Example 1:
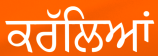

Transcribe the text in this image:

ਕਰੱਲਿਆਂ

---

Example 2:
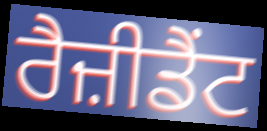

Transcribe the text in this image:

ਰੈਜ਼ੀਡੈਂਟ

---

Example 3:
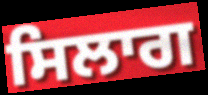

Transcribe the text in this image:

ਸਿਲਾਗ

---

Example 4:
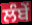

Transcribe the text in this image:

ਲੰਬੇਂ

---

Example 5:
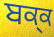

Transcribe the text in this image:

ਬਕ੍ਕ